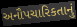
અનૌપચારિકતાનું